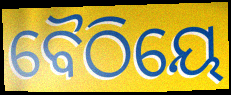
ବୈଠିୟେ